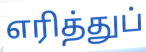
எரித்துப்